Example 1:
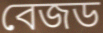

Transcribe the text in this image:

বেজড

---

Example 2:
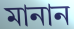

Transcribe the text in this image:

মানান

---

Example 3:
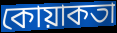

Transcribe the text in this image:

কোয়াকতা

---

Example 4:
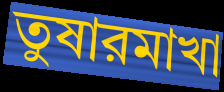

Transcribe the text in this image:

তুষারমাখা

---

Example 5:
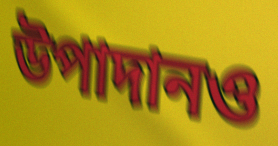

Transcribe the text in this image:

উপাদানও